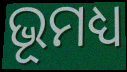
ଭୂମଧ୍ୟ